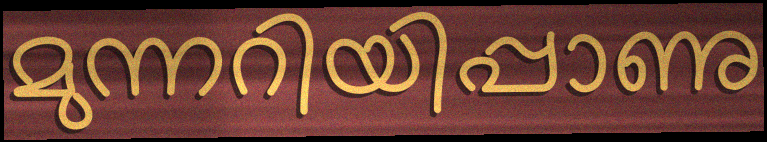
മുന്നറിയിപ്പാണു